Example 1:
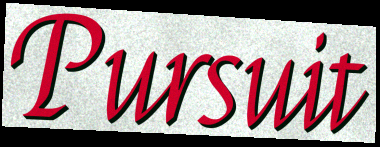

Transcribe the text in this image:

Pursuit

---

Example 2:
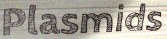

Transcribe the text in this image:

Plasmids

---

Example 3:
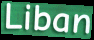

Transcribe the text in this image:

Liban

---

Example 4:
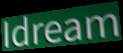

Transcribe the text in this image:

Idream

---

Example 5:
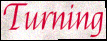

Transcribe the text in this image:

Turning